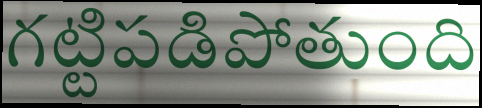
గట్టిపడిపోతుంది